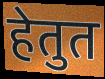
हेतुत